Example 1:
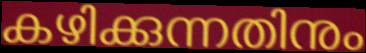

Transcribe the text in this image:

കഴിക്കുന്നതിനും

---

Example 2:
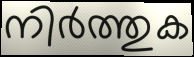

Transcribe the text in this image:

നിർത്തുക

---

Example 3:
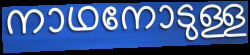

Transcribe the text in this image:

നാഥനോടുള്ള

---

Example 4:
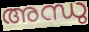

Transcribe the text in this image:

അന്ധു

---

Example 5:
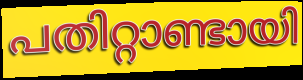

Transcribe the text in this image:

പതിറ്റാണ്ടായി